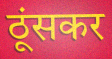
ठूंसकर